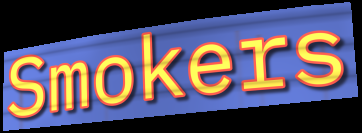
Smokers